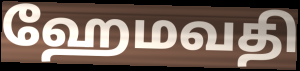
ஹேமவதி